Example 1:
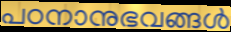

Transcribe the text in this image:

പഠനാനുഭവങ്ങൾ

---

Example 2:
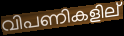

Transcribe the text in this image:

വിപണികളില്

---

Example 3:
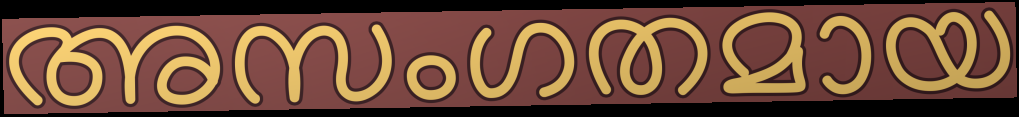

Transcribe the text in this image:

അസംഗതമായ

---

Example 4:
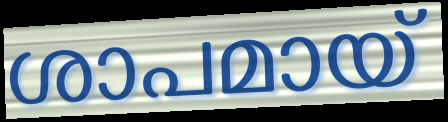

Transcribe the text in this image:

ശാപമായ്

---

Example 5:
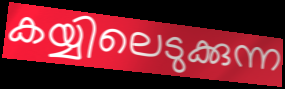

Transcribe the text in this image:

കയ്യിലെടുക്കുന്ന